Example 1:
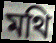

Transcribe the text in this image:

মথি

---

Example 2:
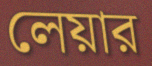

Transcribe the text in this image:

লেয়ার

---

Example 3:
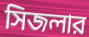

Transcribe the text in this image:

সিজলার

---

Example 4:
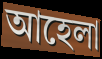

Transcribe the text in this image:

আহেলা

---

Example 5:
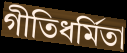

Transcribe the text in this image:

গীতিধর্মিতা